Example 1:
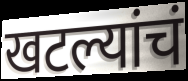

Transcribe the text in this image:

खटल्यांचं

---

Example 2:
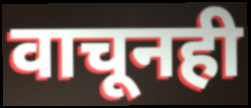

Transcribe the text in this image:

वाचूनही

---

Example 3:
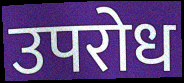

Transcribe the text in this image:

उपरोध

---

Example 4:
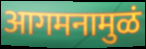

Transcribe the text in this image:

आगमनामुळं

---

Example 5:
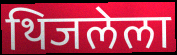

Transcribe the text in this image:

थिजलेला